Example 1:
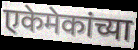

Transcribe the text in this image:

एकेमेकांच्या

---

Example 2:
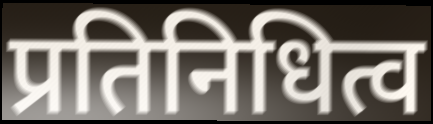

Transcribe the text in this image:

प्रतिनिधित्व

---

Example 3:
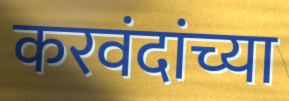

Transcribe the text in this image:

करवंदांच्या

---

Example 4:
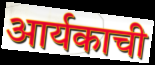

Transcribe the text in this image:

आर्यकाची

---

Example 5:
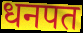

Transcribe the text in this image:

धनपत